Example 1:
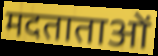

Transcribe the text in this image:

मदताताओं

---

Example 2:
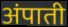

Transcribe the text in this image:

अंपाती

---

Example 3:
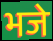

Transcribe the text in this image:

भजे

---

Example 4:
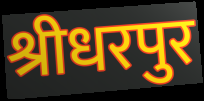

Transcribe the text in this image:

श्रीधरपुर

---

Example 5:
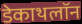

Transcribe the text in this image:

डेकाथलॉन